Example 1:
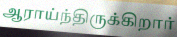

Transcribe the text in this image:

ஆராய்ந்திருக்கிறார்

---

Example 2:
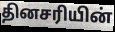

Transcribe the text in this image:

தினசரியின்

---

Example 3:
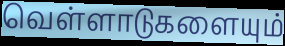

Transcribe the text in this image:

வெள்ளாடுகளையும்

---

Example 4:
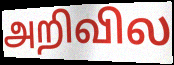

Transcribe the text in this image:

அறிவில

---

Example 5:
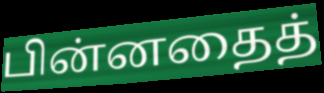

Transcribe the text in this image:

பின்னதைத்